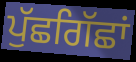
ਪੁੱਛਗਿੱਛਾਂ